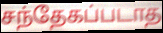
சந்தேகப்படாத